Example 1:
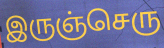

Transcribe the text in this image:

இருஞ்செரு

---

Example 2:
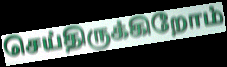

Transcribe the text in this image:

செய்திருக்கிறோம்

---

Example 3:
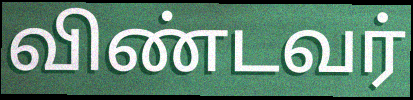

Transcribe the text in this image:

விண்டவர்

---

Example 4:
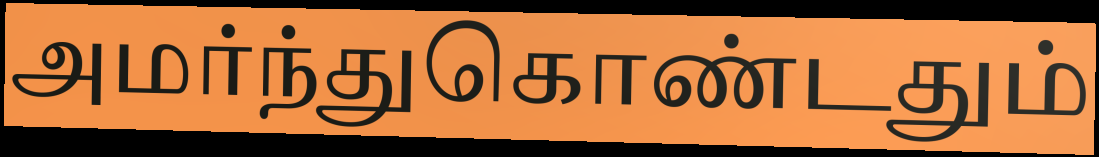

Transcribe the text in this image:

அமர்ந்துகொண்டதும்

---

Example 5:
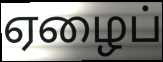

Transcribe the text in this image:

ஏழைப்